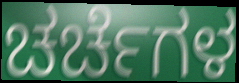
ಚರ್ಚೆಗಳ